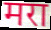
मरा